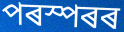
পৰস্পৰৰ